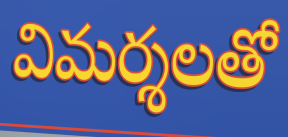
విమర్శలతో